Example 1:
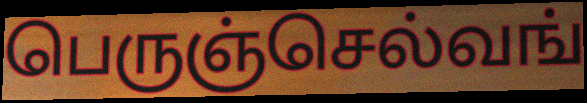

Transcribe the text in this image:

பெருஞ்செல்வங்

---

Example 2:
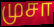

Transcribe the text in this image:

முசா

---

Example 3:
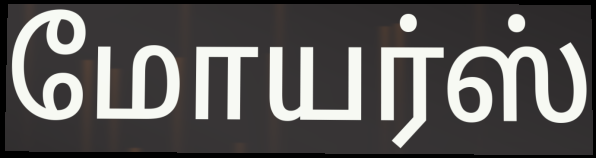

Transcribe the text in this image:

மோயர்ஸ்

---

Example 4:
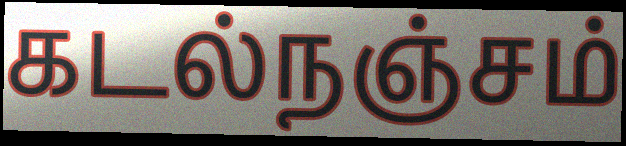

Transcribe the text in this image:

கடல்நஞ்சம்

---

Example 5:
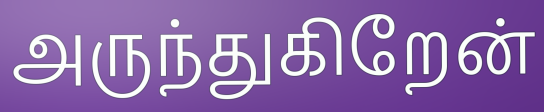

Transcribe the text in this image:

அருந்துகிறேன்